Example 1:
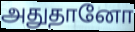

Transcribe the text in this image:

அதுதானோ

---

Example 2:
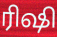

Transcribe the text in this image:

ரிஷி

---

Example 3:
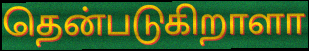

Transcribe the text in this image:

தென்படுகிறாளா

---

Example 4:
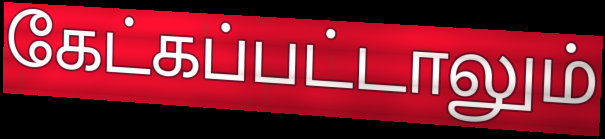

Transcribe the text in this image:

கேட்கப்பட்டாலும்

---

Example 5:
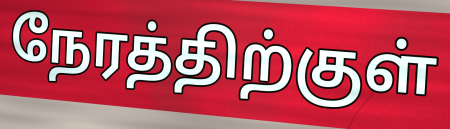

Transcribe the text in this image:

நேரத்திற்குள்